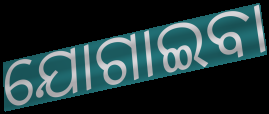
ଯୋଗାଇବା